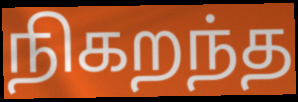
நிகறந்த